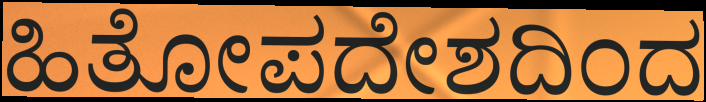
ಹಿತೋಪದೇಶದಿಂದ